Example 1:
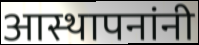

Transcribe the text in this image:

आस्थापनांनी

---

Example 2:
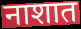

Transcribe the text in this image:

नाशात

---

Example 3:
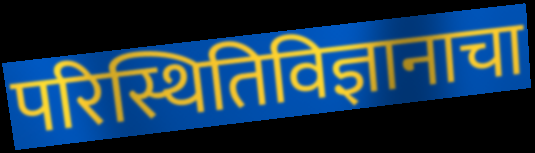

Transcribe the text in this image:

परिस्थितिविज्ञानाचा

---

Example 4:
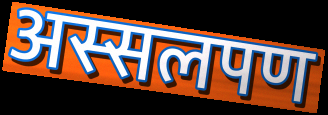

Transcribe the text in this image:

अस्सलपण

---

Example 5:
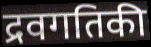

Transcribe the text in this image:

द्रवगतिकी